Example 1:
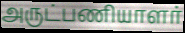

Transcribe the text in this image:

அருட்பணியாளர்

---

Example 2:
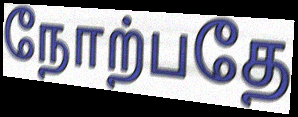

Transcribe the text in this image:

நோற்பதே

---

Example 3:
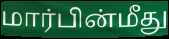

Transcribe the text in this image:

மார்பின்மீது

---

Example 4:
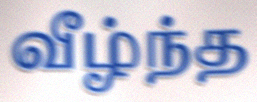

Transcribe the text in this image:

வீழ்ந்த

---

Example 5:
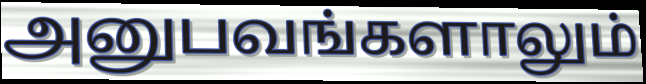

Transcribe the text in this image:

அனுபவங்களாலும்